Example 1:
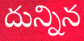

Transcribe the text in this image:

దున్నిన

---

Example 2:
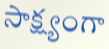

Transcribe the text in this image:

సాక్ష్యంగా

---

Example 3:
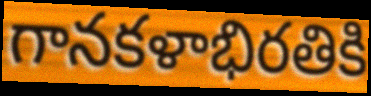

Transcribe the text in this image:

గానకళాభిరతికి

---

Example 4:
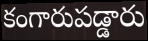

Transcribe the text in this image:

కంగారుపడ్డారు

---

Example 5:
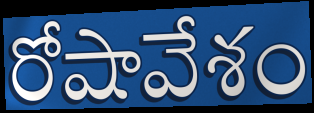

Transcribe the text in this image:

రోషావేశం